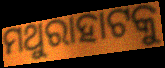
ମଥୁରାହାଟକୁ